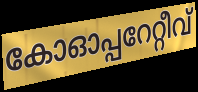
കോഓപ്പറേറ്റീവ്